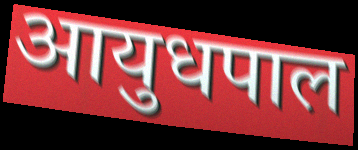
आयुधपाल